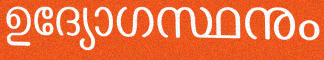
ഉദ്യോഗസ്ഥനും